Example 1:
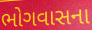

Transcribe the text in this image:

ભોગવાસના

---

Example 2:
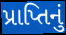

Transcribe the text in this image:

પ્રાપ્‍તિનું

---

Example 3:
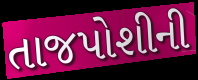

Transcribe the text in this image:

તાજપોશીની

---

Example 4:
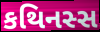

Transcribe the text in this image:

કથિનસ્સ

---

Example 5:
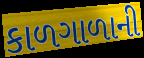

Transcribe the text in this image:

કાળગાળાની